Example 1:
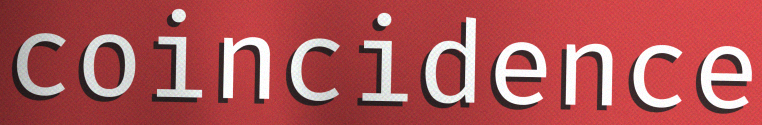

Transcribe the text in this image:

coincidence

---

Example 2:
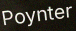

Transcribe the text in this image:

Poynter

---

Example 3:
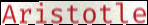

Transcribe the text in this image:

Aristotle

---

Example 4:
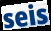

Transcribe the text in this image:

seis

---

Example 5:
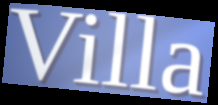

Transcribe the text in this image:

Villa